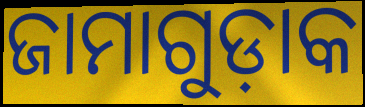
ଜାମାଗୁଡ଼ାକ